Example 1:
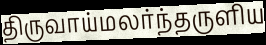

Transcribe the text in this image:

திருவாய்மலர்ந்தருளிய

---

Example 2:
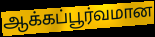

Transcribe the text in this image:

ஆக்கப்பூர்வமான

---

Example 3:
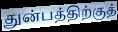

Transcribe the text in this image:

துன்பத்திற்குத்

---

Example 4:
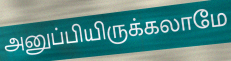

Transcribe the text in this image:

அனுப்பியிருக்கலாமே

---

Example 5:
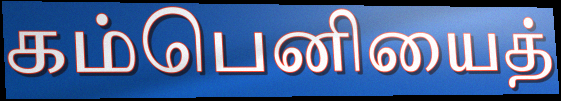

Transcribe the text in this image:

கம்பெனியைத்